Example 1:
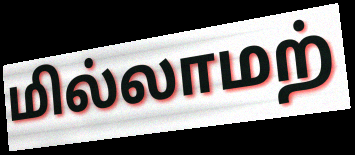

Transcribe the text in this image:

மில்லாமற்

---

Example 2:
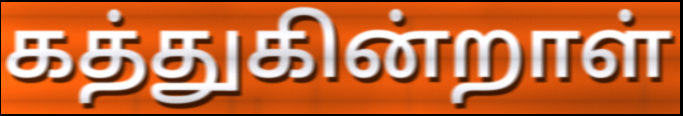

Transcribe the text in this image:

கத்துகின்றாள்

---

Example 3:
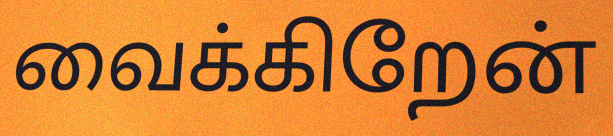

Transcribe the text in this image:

வைக்கிறேன்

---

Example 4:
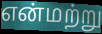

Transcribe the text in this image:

என்மற்று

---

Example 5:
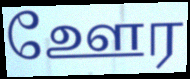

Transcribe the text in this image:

ஊேர